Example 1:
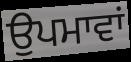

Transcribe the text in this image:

ਉਪਮਾਵਾਂ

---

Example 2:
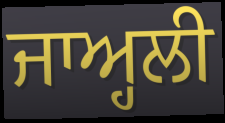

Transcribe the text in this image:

ਜਾਅ੍ਹਲੀ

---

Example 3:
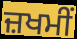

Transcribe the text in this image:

ਜ਼ਖਮੀਂ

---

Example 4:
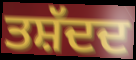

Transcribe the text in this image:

ਤਸ਼ੱਦਦ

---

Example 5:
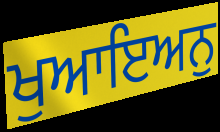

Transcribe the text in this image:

ਖੁਆਇਅਨੁ